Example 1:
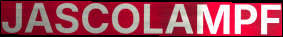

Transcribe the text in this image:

JASCOLAMPF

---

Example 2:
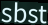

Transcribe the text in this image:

sbst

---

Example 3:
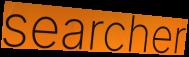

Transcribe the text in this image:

searcher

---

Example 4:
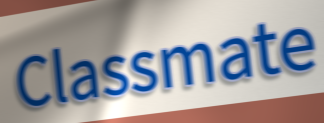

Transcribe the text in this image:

Classmate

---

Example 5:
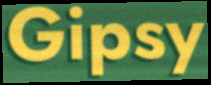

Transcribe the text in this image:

Gipsy